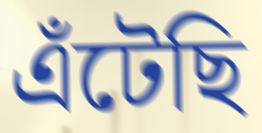
এঁটেছি